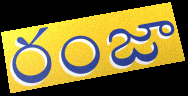
రంజా